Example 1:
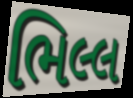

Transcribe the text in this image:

ભિલ્લ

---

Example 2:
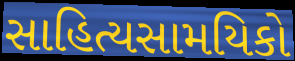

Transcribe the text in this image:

સાહિત્યસામયિકો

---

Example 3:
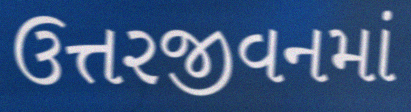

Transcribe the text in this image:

ઉત્તરજીવનમાં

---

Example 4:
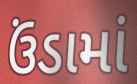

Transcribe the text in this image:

ઉંડામાં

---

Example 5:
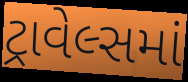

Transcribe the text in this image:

ટ્રાવેલ્સમાં